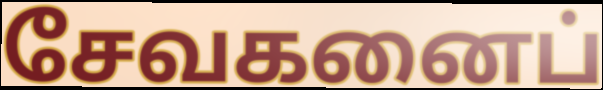
சேவகனைப்